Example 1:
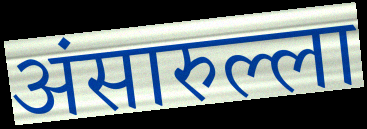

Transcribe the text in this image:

अंसारुल्ला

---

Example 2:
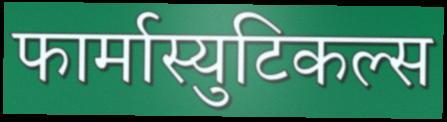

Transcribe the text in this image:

फार्मास्युटिकल्स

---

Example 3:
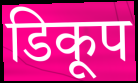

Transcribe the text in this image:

डिकूप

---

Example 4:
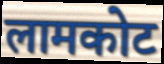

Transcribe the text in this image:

लामकोट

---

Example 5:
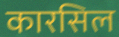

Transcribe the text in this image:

कारसिल